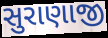
સુરાણાજી